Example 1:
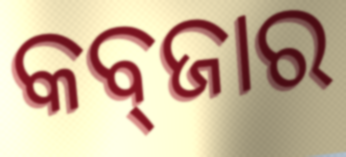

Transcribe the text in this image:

କବ୍‌ଜାର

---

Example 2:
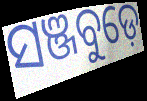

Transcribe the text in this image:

ସଞ୍ଜବୁଡ଼େ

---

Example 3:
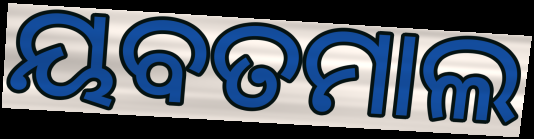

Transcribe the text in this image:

ୟବତମାଲ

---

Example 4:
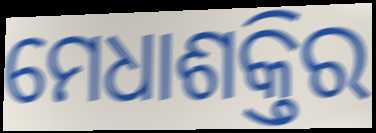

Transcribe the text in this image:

ମେଧାଶକ୍ତିର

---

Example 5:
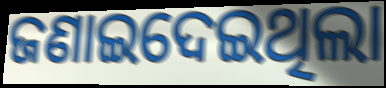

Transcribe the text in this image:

ଜଣାଇଦେଇଥିଲା